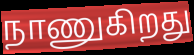
நாணுகிறது